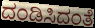
ದಂಡಿಸಿದಂತೆ